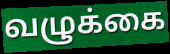
வழுக்கை